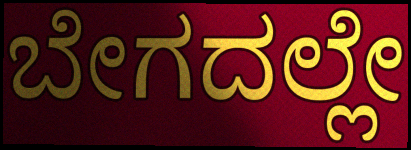
ಬೇಗದಲ್ಲೇ